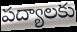
పద్యాలకు